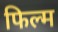
फिल्म